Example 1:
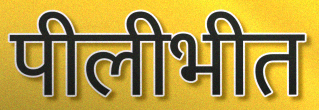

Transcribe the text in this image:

पीलीभीत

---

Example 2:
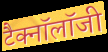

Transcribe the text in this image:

टैक्नॉलॉजी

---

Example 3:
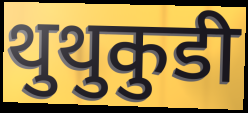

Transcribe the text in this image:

थुथुकुडी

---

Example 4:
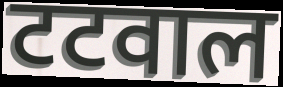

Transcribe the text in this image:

टटवाल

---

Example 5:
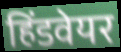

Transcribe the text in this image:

हिंडवेयर